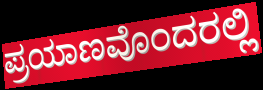
ಪ್ರಯಾಣವೊಂದರಲ್ಲಿ